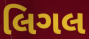
લિગલ